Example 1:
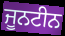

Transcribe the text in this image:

ਜੂਨਟੀਨ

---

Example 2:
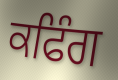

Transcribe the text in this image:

ਕਫਿੰਗ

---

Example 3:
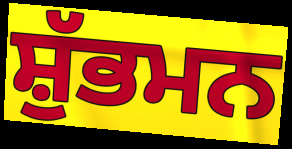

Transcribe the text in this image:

ਸ਼ੁੱਭਮਨ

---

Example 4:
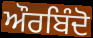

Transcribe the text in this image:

ਔਰਬਿੰਦੋ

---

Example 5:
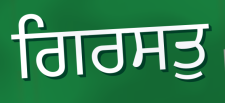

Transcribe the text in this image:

ਗਿਰਸਤੁ